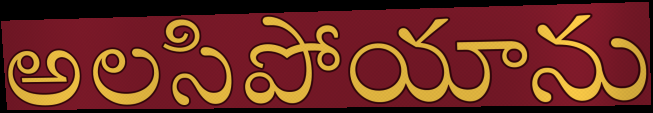
అలసిపోయాను